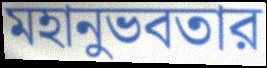
মহানুভবতার